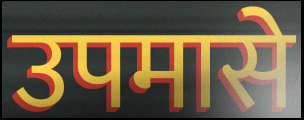
उपमासे